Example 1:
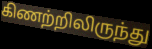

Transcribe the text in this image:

கிணற்றிலிருந்து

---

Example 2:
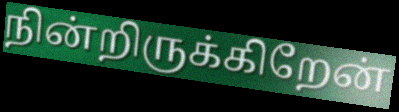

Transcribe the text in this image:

நின்றிருக்கிறேன்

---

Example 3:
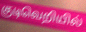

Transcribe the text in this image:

குடிவெறியில்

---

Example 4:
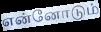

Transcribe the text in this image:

என்னோடும்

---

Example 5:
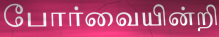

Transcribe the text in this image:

போர்வையின்றி